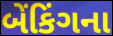
બેંકિંગના